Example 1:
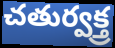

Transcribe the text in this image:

చతుర్వక్త్ర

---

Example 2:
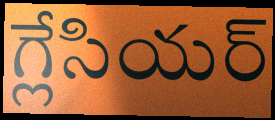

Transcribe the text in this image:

గ్లేసియర్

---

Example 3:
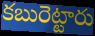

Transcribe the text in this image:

కబురెట్టారు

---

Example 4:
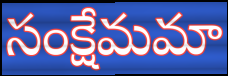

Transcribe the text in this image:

సంక్షేమమా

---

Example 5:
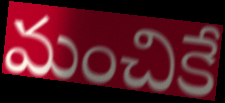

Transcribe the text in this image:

మంచికే